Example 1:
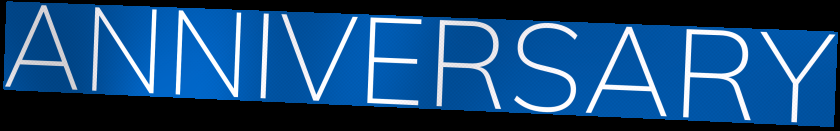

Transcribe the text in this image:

ANNIVERSARY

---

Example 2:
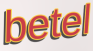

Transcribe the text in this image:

betel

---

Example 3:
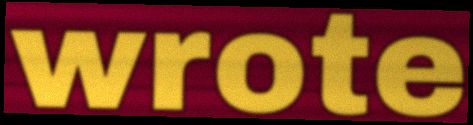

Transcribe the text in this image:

wrote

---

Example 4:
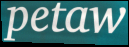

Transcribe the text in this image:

petaw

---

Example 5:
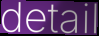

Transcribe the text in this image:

detail